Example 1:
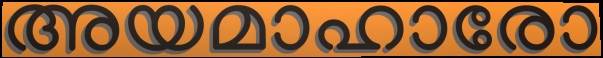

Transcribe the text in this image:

അയമാഹാരോ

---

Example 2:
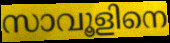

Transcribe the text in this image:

സാവൂളിനെ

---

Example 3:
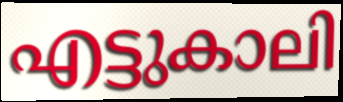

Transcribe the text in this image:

എട്ടുകാലി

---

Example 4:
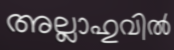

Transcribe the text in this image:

അല്ലാഹുവിൽ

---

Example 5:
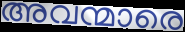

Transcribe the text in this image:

അവന്മാരെ